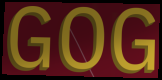
GOG